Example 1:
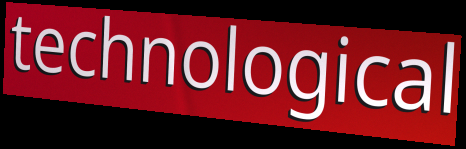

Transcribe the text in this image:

technological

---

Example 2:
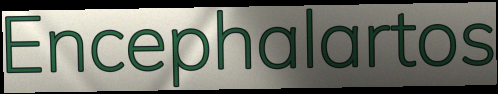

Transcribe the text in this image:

Encephalartos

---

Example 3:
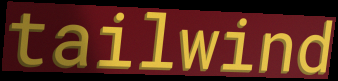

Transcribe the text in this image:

tailwind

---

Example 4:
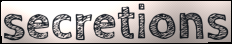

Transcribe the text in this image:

secretions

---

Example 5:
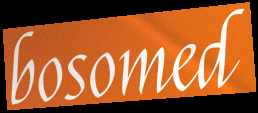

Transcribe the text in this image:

bosomed